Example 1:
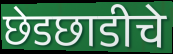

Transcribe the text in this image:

छेडछाडीचे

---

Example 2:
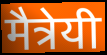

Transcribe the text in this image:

मैत्रेयी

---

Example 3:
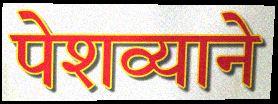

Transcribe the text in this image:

पेशव्याने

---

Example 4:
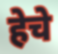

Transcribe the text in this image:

हेचे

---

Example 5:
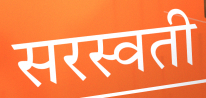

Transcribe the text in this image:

सरस्वती